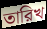
তারিখ